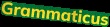
Grammaticus